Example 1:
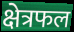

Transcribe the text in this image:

क्षेत्रफल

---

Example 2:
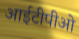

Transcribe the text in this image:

आईटीपीओ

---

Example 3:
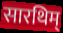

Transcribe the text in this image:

सारथिम्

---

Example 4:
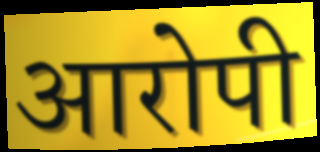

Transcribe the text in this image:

आरोपी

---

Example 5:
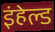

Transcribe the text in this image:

इंहेल्ड